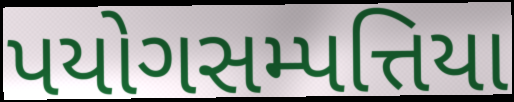
પયોગસમ્પત્તિયા